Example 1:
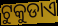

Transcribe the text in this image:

ଟୁକୁଡାଏ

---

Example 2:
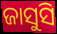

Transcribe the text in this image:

ଜାସୁସି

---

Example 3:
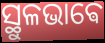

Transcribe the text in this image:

ସ୍ଥୁଳଭାଵେ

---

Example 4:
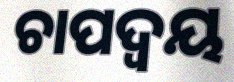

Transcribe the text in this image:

ଚାପଦ୍ଵୟ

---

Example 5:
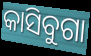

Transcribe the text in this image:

କାସିବୁଗା